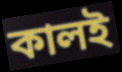
কালই